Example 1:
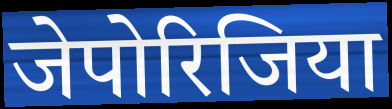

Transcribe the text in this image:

जेपोरिजिया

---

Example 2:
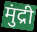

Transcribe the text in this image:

मुंद्री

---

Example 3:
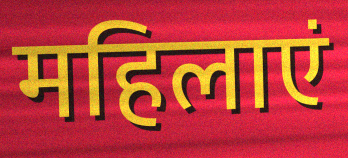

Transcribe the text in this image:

महिलाएं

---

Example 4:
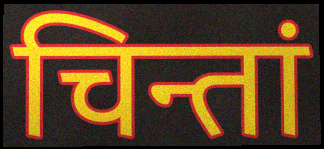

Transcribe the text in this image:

चिन्तां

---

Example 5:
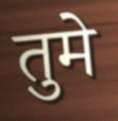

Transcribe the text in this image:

तुमे